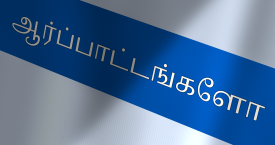
ஆர்ப்பாட்டங்களோ